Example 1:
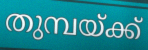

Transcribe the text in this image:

തുമ്പയ്ക്ക്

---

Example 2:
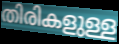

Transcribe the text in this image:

തിരികളുള്ള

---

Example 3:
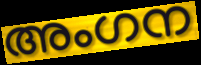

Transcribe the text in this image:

അംഗന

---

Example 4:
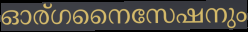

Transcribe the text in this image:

ഓര്ഗനൈസേഷനും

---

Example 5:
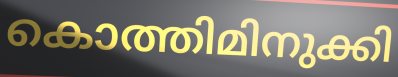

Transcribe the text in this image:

കൊത്തിമിനുക്കി